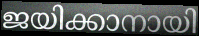
ജയിക്കാനായി